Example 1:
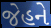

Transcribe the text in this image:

જેહને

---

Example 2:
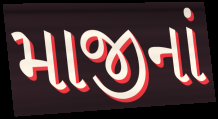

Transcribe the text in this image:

માજીનાં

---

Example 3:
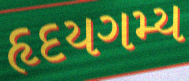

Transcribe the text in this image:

હૃદયગમ્ય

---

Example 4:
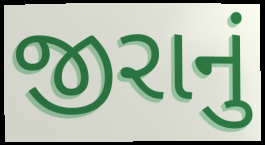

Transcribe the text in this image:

જીરાનું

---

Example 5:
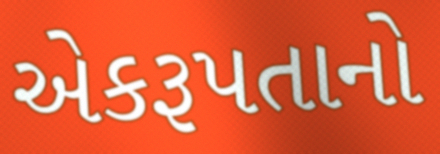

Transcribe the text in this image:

એકરૂપતાનો